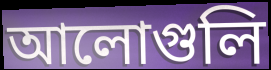
আলোগুলি